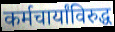
कर्मचार्यांविरुद्ध